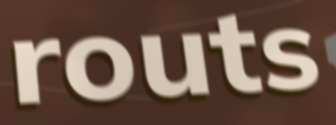
routs